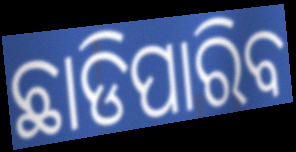
ଛାଡିପାରିବ